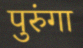
पुरुंगा